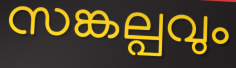
സങ്കല്പവും